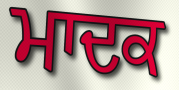
ਮਾਦਕ